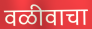
वळीवाचा